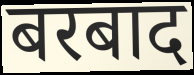
बरबाद